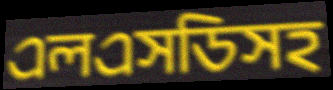
এলএসডিসহ